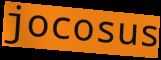
jocosus